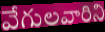
వేగులవారిని